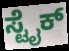
ಸ್ಟೈಕ್